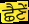
ਛੈਣੇਂ